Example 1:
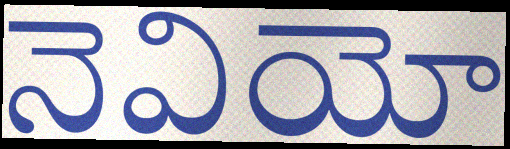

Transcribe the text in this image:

నెవియో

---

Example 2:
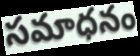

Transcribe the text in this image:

సమాధనం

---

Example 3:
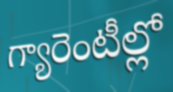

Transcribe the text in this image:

గ్యారెంటీల్లో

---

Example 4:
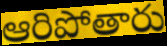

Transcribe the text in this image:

ఆరిపోతారు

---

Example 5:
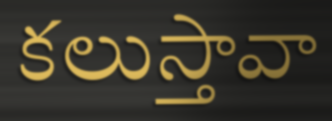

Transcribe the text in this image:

కలుస్తావా